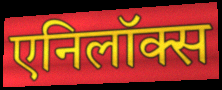
एनिलॉक्स